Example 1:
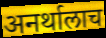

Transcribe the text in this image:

अनर्थालाच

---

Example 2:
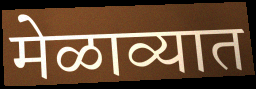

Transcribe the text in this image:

मेळाव्यात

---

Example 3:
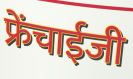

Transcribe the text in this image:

फ्रेंचाईजी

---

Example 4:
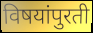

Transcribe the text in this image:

विषयांपुरती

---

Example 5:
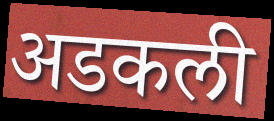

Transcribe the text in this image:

अडकली